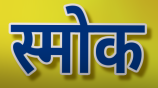
स्मोक